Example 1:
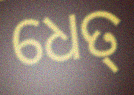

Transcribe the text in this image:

ଧେତ୍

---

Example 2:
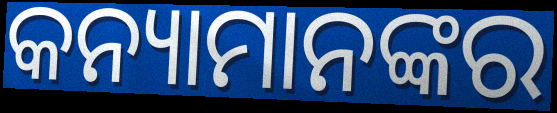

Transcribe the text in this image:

କନ୍ୟାମାନଙ୍କର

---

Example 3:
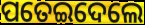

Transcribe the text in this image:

ପତେଇଦେଲେ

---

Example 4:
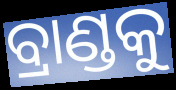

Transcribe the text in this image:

ବ୍ରାଣ୍ଡକୁ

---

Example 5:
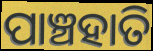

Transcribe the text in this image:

ପାଞ୍ଚହାତି